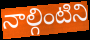
నాల్గింటిని